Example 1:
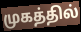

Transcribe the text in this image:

முகத்தில்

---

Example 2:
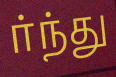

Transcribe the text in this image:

ர்ந்து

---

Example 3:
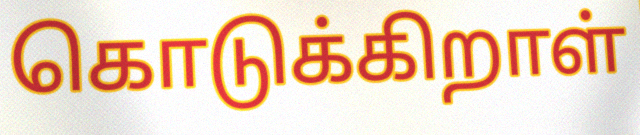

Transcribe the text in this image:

கொடுக்கிறாள்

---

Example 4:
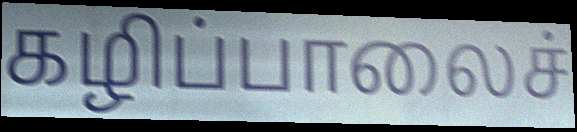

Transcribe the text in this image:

கழிப்பாலைச்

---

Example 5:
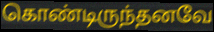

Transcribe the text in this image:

கொண்டிருந்தனவே